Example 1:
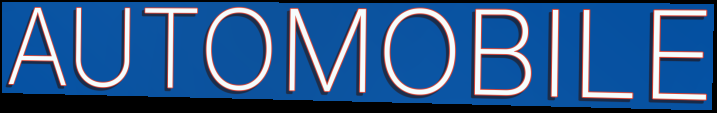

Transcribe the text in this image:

AUTOMOBILE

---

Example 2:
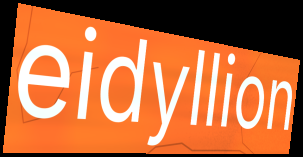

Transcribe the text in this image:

eidyllion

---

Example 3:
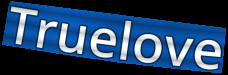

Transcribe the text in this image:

Truelove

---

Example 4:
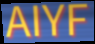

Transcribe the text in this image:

AIYF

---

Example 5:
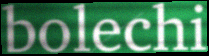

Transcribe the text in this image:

bolechi